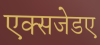
एक्सजेडए